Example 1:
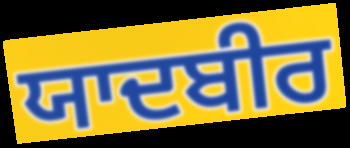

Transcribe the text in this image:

ਯਾਦਬੀਰ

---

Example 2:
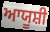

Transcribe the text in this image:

ਆਯੂਸ਼ੀ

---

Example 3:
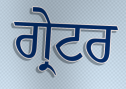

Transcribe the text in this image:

ਗ੍ਰੇਟਰ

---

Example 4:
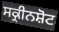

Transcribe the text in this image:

ਸਕ੍ਰੀਨਸ਼ੋਟ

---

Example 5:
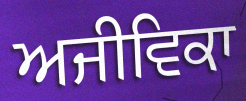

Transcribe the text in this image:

ਅਜੀਵਿਕਾ